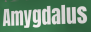
Amygdalus